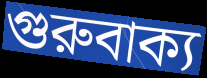
গুরুবাক্য